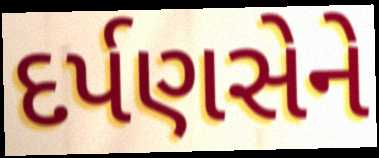
દર્પણસેને